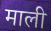
माली